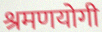
श्रमणयोगी